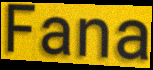
Fana